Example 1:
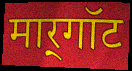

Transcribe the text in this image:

मार्गॉट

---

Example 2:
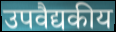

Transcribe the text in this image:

उपवैद्यकीय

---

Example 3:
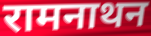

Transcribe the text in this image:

रामनाथन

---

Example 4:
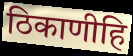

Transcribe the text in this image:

ठिकाणीहि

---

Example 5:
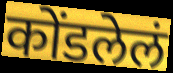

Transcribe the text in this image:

कोंडलेलं